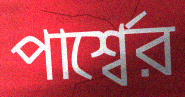
পার্শ্বের